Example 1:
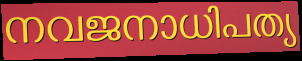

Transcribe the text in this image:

നവജനാധിപത്യ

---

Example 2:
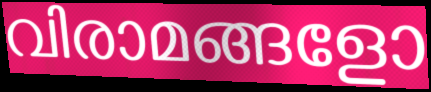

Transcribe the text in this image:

വിരാമങ്ങളോ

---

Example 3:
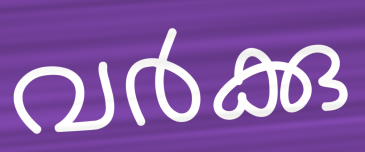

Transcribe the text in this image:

വർക്കു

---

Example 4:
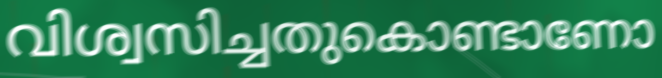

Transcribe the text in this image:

വിശ്വസിച്ചതുകൊണ്ടാണോ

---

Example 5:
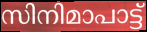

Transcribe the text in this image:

സിനിമാപാട്ട്